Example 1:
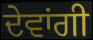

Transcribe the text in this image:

ਦੇਵਾਂਗੀ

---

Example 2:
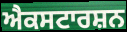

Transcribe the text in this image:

ਐਕਸਟਾਰਸ਼ਨ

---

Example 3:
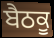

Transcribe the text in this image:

ਬੈਠਕੂ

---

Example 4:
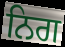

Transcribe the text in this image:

ਨਿਗ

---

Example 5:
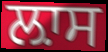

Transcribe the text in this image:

ਲ਼ਾਸ